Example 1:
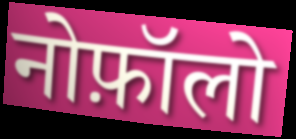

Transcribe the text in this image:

नोफ़ॉलो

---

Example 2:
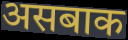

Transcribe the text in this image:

असबाक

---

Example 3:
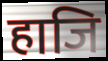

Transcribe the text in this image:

हाजि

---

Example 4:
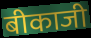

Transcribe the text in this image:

बीकाजी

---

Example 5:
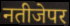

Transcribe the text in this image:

नतीजेपर